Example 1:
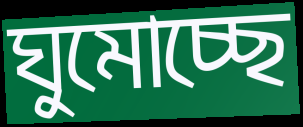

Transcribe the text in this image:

ঘুমোচ্ছে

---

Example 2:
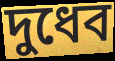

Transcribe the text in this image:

দুধেব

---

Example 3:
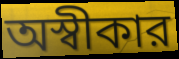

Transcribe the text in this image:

অস্বীকার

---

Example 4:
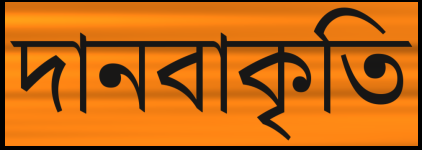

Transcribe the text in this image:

দানবাকৃতি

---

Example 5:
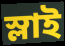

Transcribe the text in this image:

স্লাই